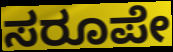
ಸರೂಪೇ